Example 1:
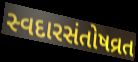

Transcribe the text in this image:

સ્વદારસંતોષવ્રત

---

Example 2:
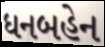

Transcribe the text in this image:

ધનબહેન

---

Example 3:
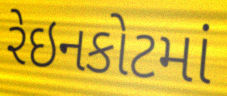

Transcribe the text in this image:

રેઇનકોટમાં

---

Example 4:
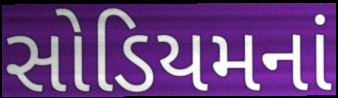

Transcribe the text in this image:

સોડિયમનાં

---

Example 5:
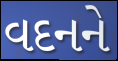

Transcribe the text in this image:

વદનને